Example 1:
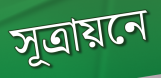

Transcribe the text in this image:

সূত্রায়নে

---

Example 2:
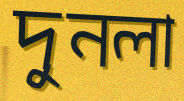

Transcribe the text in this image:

দুনলা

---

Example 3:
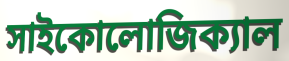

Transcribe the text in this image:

সাইকোলোজিক্যাল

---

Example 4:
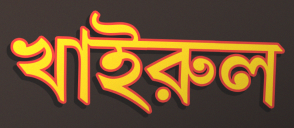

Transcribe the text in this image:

খাইরুল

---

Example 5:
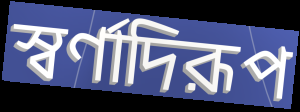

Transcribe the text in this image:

স্বর্ণাদিরূপ